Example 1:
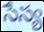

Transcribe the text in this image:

సేస్య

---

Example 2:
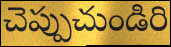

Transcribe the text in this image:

చెప్పుచుండిరి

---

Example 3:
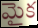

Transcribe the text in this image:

మైక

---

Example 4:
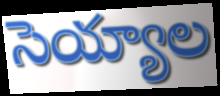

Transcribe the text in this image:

సెయ్యాల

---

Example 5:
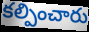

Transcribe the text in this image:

కల్పించారు